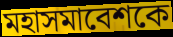
মহাসমাবেশকে